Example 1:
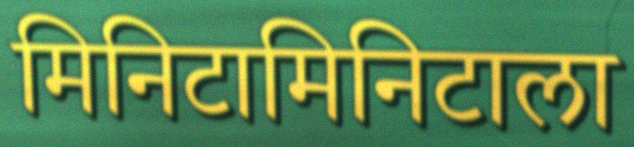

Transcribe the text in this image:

मिनिटामिनिटाला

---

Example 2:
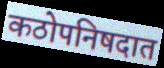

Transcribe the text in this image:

कठोपनिषदात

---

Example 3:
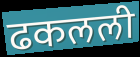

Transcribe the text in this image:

ढकलली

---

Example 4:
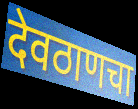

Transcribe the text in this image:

देवठाणचा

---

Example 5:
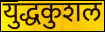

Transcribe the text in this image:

युद्धकुशल